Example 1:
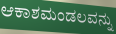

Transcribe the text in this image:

ಆಕಾಶಮಂಡಲವನ್ನು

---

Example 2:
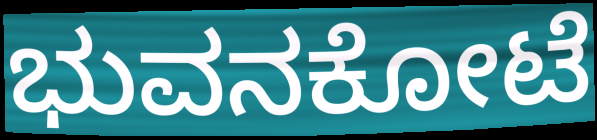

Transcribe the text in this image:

ಭುವನಕೋಟೆ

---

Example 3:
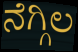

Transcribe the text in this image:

ನೆಗ್ಗಿಲ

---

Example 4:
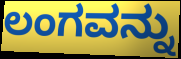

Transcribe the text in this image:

ಲಂಗವನ್ನು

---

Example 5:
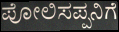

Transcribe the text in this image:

ಪೋಲಿಸಪ್ಪನಿಗೆ